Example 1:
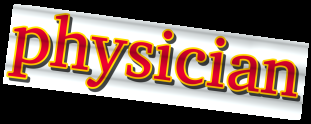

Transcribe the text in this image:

physician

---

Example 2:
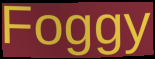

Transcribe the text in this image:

Foggy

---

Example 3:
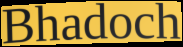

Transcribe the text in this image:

Bhadoch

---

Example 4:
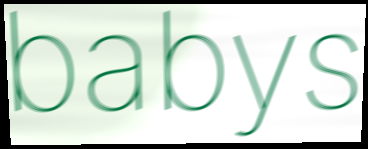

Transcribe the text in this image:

babys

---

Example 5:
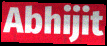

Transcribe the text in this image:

Abhijit